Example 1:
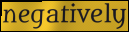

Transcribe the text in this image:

negatively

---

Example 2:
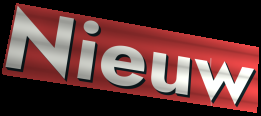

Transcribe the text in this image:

Nieuw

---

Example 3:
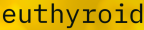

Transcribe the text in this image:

euthyroid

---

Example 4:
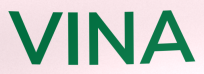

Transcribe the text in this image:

VINA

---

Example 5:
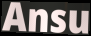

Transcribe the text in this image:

Ansu